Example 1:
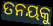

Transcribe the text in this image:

ତନୟକୁ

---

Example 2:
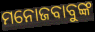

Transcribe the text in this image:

ମନୋଜବାବୁଙ୍କ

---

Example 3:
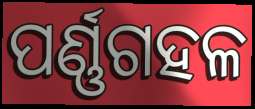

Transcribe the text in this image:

ପର୍ଣ୍ଣଗହଳ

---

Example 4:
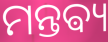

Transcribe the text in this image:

ମନ୍ତଵ୍ୟ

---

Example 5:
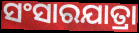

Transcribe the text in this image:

ସଂସାରଯାତ୍ରା